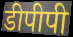
डीपीपी